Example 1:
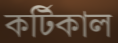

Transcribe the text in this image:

কর্টিকাল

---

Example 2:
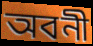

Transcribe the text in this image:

অবনী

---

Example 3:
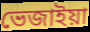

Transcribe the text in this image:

ভেজাইয়া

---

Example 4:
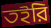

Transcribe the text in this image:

তইরি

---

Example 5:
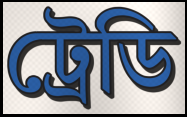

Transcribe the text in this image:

ট্রেডি